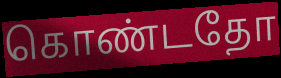
கொண்டதோ